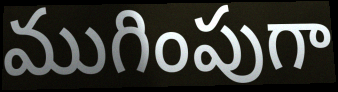
ముగింపుగా